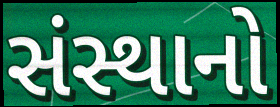
સંસ્થાનો